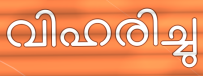
വിഹരിച്ചു